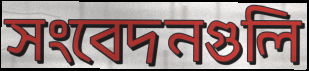
সংবেদনগুলি